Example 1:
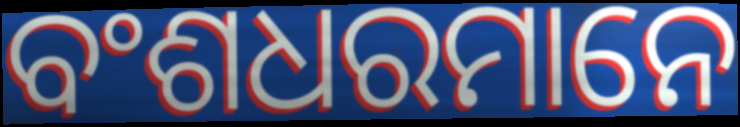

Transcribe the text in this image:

ବଂଶଧରମାନେ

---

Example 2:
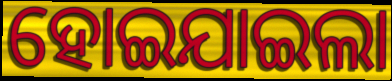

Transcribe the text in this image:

ହୋଇଯାଇଲା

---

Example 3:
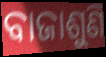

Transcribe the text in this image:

ବାଜାଶୁଣି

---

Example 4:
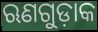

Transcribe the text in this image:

ଋଣଗୁଡ଼ାକ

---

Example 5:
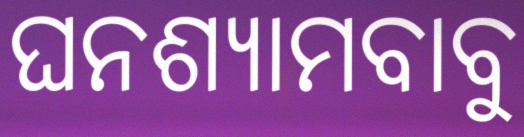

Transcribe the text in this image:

ଘନଶ୍ୟାମବାବୁ